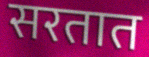
सरतात